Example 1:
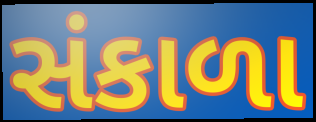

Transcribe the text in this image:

સંકાળા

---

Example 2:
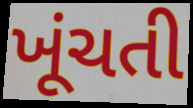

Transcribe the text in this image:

ખૂંચતી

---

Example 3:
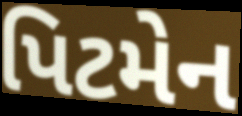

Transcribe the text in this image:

પિટમેન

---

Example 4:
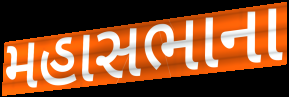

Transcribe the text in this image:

મહાસભાના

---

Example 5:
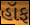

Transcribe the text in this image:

હૉફ